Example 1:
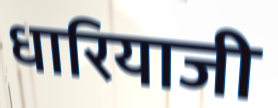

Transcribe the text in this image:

धारियाजी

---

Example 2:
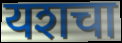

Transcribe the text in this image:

यशचा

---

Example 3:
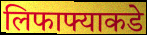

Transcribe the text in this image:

लिफाफ्याकडे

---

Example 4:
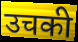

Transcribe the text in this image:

उचकी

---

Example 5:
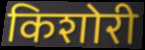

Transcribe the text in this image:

किशोरी